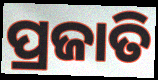
ପ୍ରଜାତି